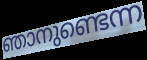
ഞാനുണ്ടെന്ന